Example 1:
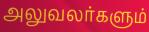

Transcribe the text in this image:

அலுவலர்களும்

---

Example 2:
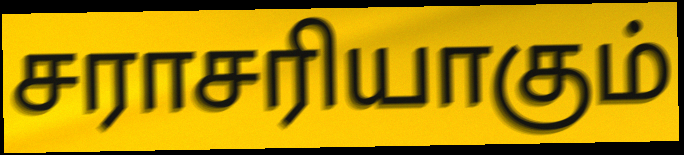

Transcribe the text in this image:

சராசரியாகும்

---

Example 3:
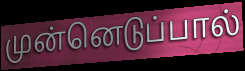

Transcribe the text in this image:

முன்னெடுப்பால்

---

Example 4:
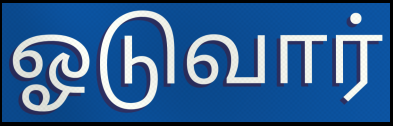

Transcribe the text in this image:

ஓடுவார்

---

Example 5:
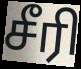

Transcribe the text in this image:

சீரி